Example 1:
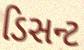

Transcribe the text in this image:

ડિસન્ટ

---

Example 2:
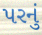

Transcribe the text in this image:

પરનું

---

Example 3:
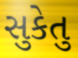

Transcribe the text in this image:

સુકેતુ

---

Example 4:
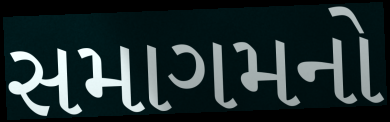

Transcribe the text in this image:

સમાગમનો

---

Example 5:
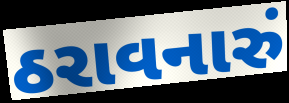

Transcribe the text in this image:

ઠરાવનારું